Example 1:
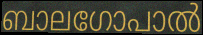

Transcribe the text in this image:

ബാലഗോപാൽ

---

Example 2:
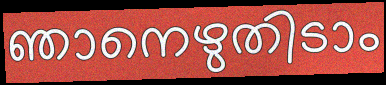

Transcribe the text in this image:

ഞാനെഴുതിടാം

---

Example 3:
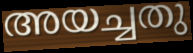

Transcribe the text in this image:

അയച്ചതു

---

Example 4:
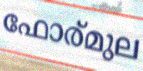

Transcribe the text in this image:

ഫോര്മുല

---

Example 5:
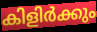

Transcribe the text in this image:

കിളിർക്കും